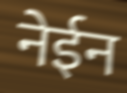
नेईन